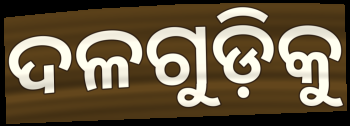
ଦଳଗୁଡ଼ିକୁ